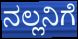
ನಲ್ಲನಿಗೆ